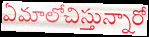
ఏమాలోచిస్తున్నారో